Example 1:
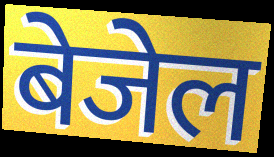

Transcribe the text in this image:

बेजेल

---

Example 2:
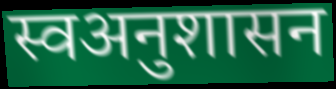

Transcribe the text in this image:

स्वअनुशासन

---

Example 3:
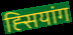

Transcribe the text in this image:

ह्सियांग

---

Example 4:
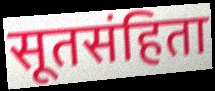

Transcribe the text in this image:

सूतसंहिता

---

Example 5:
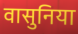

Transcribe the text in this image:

वासुनिया